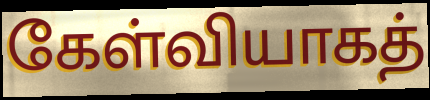
கேள்வியாகத்